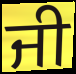
ਜੀ